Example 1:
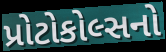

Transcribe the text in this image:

પ્રોટોકોલ્સનો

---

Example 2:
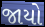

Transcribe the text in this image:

જાયો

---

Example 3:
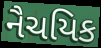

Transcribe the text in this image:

નૈચયિક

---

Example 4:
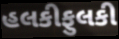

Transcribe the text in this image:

હલકીફુલકી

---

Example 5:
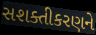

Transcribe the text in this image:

સશક્તીકરણને